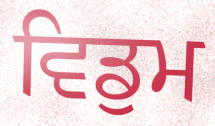
ਵਿਡੁਮ